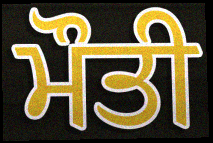
ਮੌਤੀ